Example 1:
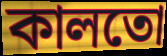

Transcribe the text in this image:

কালতো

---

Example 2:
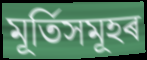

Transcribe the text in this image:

মূৰ্তিসমূহৰ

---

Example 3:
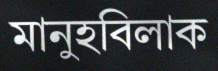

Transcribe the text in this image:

মানুহবিলাক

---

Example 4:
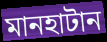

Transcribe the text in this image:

মানহাটান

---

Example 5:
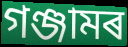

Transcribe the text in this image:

গঞ্জামৰ